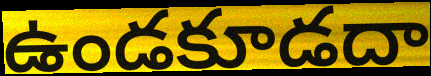
ఉండకూడదా